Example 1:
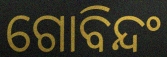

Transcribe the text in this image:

ଗୋବିନ୍ଦଂ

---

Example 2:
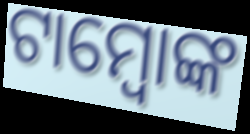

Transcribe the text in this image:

ଟାମ୍ବୋଙ୍କ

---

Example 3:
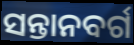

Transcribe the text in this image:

ସନ୍ତାନବର୍ଗ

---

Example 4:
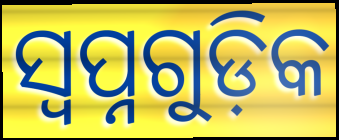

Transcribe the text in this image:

ସ୍ୱପ୍ନଗୁଡ଼ିକ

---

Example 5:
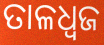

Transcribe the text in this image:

ତାଳଧ୍ୱଜ